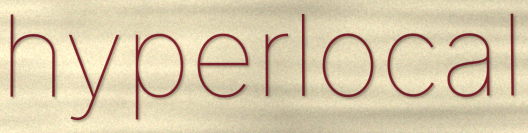
hyperlocal